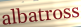
albatross